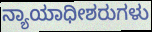
ನ್ಯಾಯಾಧೀಶರುಗಳು